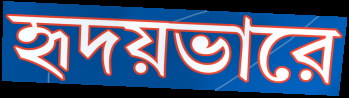
হৃদয়ভারে